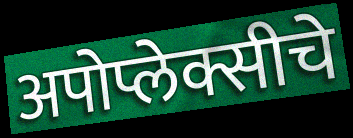
अपोप्लेक्सीचे